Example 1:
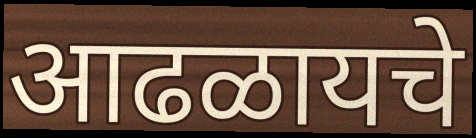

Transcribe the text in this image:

आढळायचे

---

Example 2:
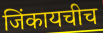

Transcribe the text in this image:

जिंकायचीच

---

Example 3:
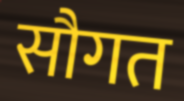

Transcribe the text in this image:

सौगत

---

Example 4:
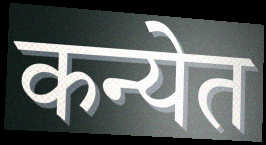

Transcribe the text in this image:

कन्येत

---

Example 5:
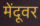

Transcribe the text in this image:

मेंदूवर